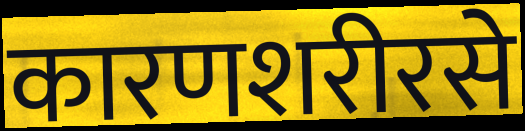
कारणशरीरसे